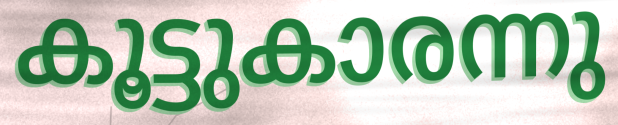
കൂട്ടുകാരന്നു